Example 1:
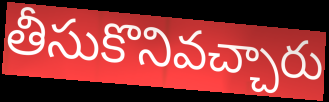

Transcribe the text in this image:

తీసుకొనివచ్చారు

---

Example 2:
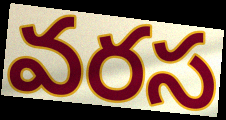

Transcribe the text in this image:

వరస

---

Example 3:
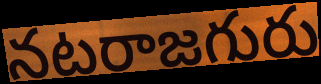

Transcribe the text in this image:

నటరాజగురు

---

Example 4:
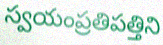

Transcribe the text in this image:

స్వయంప్రతిపత్తిని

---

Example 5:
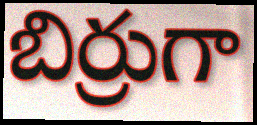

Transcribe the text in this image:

బిర్రుగా